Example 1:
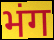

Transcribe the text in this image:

भंग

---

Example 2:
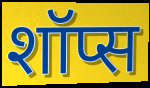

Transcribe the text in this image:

शॉप्स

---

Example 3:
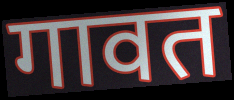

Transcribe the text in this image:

गावत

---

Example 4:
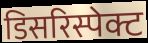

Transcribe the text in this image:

डिसरिस्पेक्ट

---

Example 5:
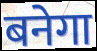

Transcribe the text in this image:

बनेगा